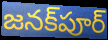
జనక్‌పూర్